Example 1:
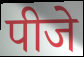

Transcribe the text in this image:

पीजे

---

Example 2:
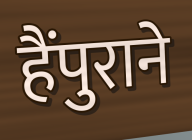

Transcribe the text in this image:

हैंपुराने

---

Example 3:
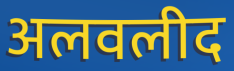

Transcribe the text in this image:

अलवलीद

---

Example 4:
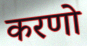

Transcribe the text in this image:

करणो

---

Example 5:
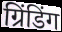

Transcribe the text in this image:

ग्रिंडिंग